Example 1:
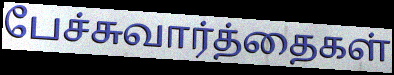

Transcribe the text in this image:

பேச்சுவார்த்தைகள்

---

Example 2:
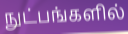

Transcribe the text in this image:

நுட்பங்களில்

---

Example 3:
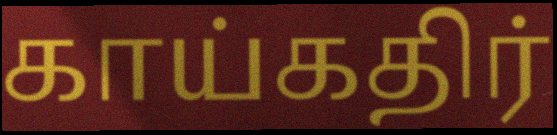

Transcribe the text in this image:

காய்கதிர்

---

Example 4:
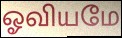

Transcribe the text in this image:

ஓவியமே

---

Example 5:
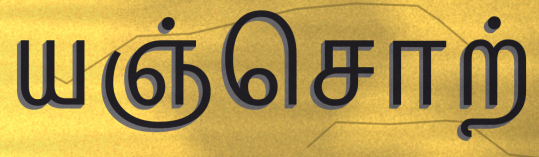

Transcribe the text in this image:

யஞ்சொற்